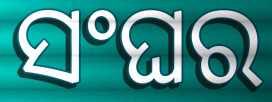
ସଂଘର